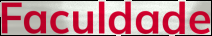
Faculdade